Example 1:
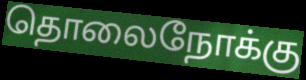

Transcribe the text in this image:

தொலைநோக்கு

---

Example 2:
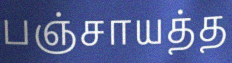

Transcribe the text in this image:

பஞ்சாயத்த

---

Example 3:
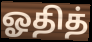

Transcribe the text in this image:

ஓதித்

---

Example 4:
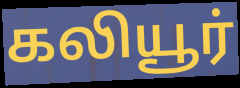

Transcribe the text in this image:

கலியூர்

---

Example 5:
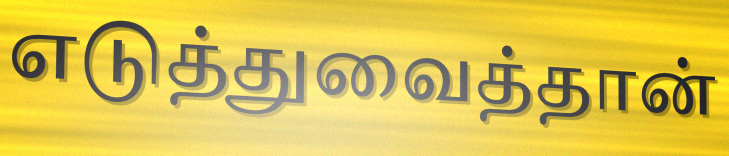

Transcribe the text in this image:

எடுத்துவைத்தான்